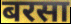
बरसा